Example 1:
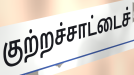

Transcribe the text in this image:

குற்றச்சாட்டைச்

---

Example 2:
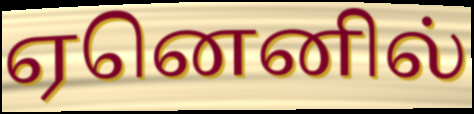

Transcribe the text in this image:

ஏனெனில்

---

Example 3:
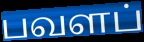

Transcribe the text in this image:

பவளப்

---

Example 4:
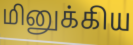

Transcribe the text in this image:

மினுக்கிய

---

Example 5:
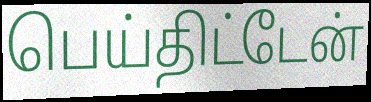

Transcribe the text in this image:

பெய்திட்டேன்